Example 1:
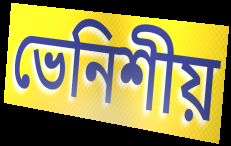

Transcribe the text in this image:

ভেনিশীয়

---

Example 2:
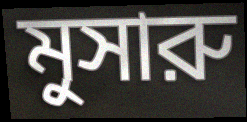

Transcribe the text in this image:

মুসারু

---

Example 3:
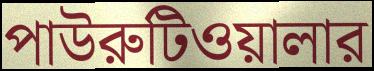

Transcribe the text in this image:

পাউরুটিওয়ালার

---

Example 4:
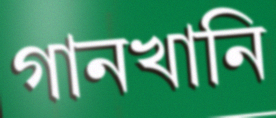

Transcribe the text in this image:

গানখানি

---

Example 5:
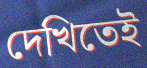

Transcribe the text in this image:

দেখিতেই